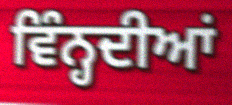
ਵਿੰਨ੍ਹਦੀਆਂ